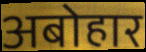
अबोहार